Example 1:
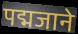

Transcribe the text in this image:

पद्मजाने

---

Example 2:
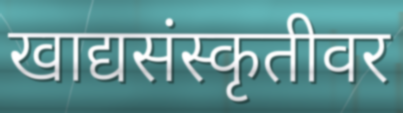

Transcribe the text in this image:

खाद्यसंस्कृतीवर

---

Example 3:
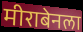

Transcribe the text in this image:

मीराबेनला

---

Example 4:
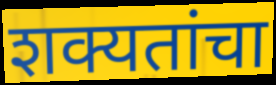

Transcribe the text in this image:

शक्यतांचा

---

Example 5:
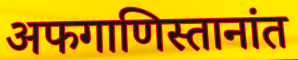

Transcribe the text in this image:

अफगाणिस्तानांत